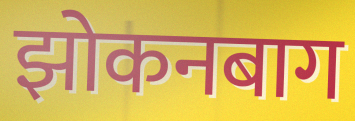
झोकनबाग